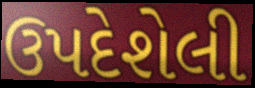
ઉપદેશેલી